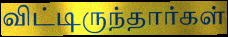
விட்டிருந்தார்கள்